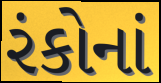
રંકોનાં